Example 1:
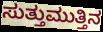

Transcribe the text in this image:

ಸುತ್ತುಮುತ್ತಿನ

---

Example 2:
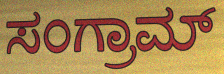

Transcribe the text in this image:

ಸಂಗ್ರಾಮ್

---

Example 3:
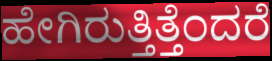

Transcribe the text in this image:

ಹೇಗಿರುತ್ತಿತ್ತೆಂದರೆ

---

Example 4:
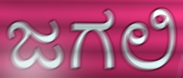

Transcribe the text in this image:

ಜಗಲಿ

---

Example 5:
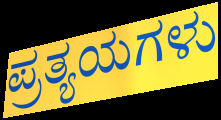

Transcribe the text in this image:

ಪ್ರತ್ಯಯಗಳು